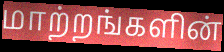
மாற்றங்களின்